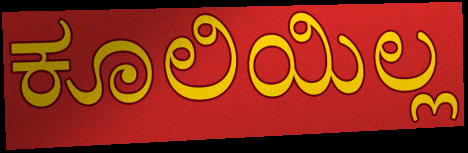
ಕೂಲಿಯಿಲ್ಲ